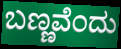
ಬಣ್ಣವೆಂದು